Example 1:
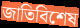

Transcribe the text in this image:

জাতিবিশেষ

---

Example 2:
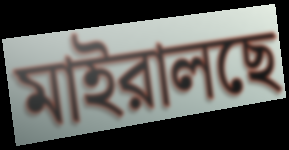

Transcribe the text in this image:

মাইরালছে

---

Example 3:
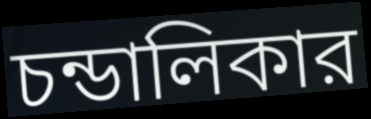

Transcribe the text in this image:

চন্ডালিকার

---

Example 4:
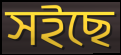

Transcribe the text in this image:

সইছে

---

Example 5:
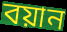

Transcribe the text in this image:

বয়ান